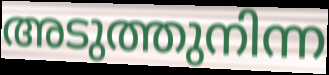
അടുത്തുനിന്ന